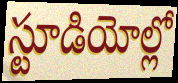
స్టూడియోల్లో